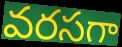
వరసగా